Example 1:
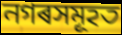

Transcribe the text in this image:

নগৰসমূহত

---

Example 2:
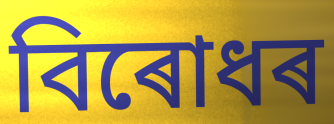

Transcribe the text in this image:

বিৰোধৰ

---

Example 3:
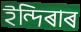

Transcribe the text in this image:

ইন্দিৰাৰ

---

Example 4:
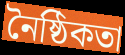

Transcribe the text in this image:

নৈষ্ঠিকতা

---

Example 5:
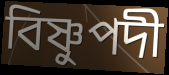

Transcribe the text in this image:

বিষ্ণুপদী